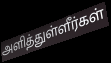
அளித்துள்ளீர்கள்